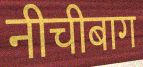
नीचीबाग